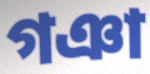
গঞা